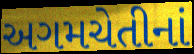
અગમચેતીનાં